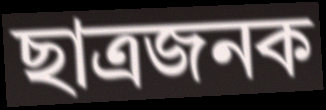
ছাত্ৰজনক